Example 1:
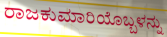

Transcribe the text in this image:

ರಾಜಕುಮಾರಿಯೊಬ್ಬಳನ್ನು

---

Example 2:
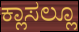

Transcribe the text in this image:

ಕ್ಲಾಸಲ್ಲೂ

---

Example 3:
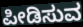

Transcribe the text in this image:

ಪೀಡಿಸುವ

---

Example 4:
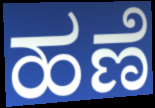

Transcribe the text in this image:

ಹಣೆ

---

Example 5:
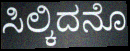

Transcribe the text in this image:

ಸಿಲ್ಕಿದನೊ